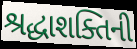
શ્રદ્ધાશક્તિની